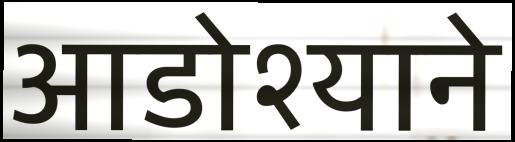
आडोश्याने